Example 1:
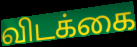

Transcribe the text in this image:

விடக்கை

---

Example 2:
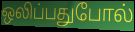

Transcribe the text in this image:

ஒலிப்பதுபோல்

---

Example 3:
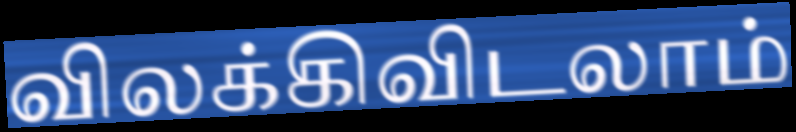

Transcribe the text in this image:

விலக்கிவிடலாம்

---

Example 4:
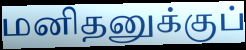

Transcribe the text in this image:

மனிதனுக்குப்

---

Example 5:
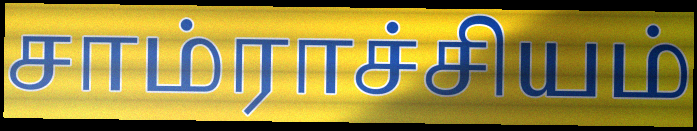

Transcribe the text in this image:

சாம்ராச்சியம்